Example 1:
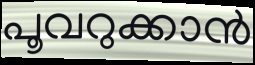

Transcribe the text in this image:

പൂവറുക്കാൻ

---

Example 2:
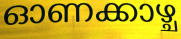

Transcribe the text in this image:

ഓണക്കാഴ്ച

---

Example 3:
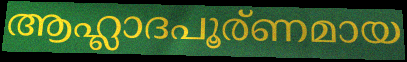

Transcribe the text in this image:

ആഹ്ലാദപൂര്ണമായ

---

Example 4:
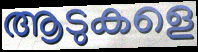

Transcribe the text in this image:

ആടുകളെ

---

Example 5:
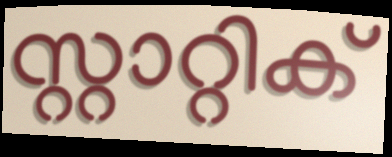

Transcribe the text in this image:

സ്റ്റാറ്റിക്